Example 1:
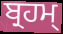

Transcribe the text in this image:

ਬ੍ਰਹਮ੍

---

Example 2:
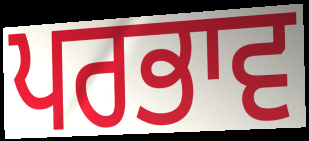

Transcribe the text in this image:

ਪਰਭਾਵ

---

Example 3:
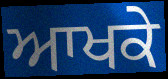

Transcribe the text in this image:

ਆਖਕੇ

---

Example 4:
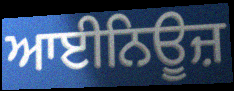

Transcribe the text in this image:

ਆਈਨਿਊਜ਼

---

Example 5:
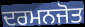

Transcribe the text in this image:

ਦਰਮਨਜੋਤ